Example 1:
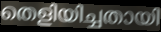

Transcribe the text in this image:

തെളിയിച്ചതായി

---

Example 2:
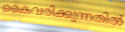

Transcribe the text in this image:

കൈവരിക്കുന്നതിൽ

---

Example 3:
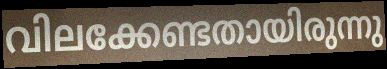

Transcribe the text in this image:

വിലക്കേണ്ടതായിരുന്നു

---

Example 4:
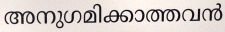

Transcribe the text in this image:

അനുഗമിക്കാത്തവൻ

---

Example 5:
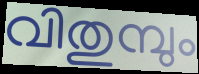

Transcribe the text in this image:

വിതുമ്പും